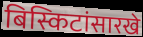
बिस्किटांसारखे